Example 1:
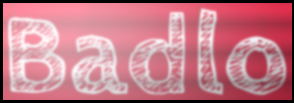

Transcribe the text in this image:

Badlo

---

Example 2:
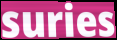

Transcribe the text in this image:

suries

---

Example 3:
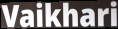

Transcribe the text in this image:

Vaikhari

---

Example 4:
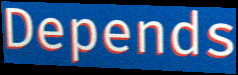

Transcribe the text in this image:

Depends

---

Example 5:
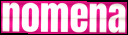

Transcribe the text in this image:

nomena